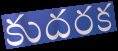
కుదరక